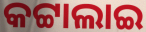
କଟ୍ଟାଲାଇ